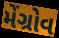
મેંગ્રોવ